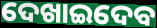
ଦେଖାଇଦେବ